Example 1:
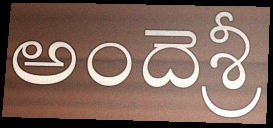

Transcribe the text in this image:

అందెశ్రీ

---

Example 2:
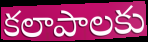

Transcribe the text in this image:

కలాపాలకు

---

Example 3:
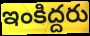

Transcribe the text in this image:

ఇంకిద్దరు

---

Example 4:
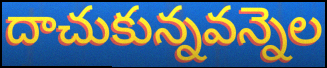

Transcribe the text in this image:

దాచుకున్నవన్నెల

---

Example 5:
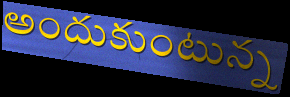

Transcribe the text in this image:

అందుకుంటున్న